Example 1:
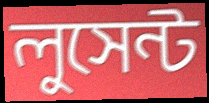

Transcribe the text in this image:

লুসেন্ট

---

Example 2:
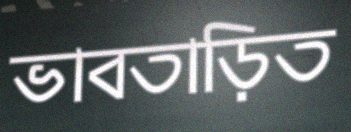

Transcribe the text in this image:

ভাবতাড়িত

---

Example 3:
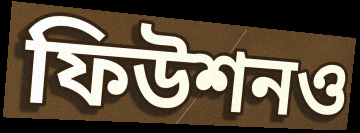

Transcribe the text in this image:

ফিউশনও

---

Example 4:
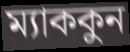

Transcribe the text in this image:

ম্যাককুন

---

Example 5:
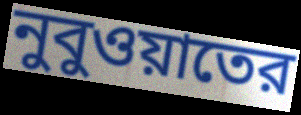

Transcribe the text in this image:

নুবুওয়াতের